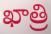
ఖాత్రి